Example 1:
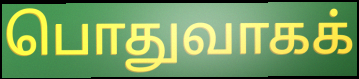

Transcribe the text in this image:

பொதுவாகக்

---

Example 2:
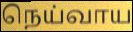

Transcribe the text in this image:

நெய்வாய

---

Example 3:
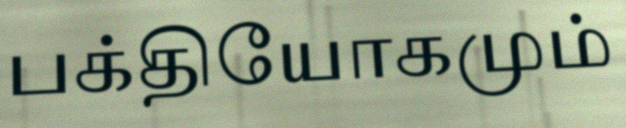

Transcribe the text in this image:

பக்தியோகமும்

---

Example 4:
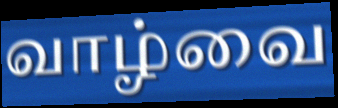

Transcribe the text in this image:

வாழ்வை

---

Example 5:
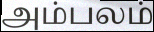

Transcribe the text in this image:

அம்பலம்